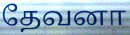
தேவனா